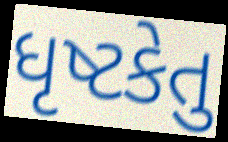
ધૃષ્ટકેતુ